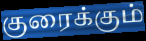
குரைக்கும்